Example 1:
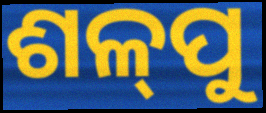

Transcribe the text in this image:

ଶଳ୍‍ପୁ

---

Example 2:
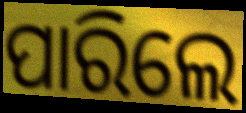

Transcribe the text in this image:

ପାରିଲେ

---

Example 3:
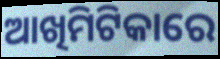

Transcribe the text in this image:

ଆଖିମିଟିକାରେ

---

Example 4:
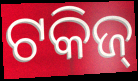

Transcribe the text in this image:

ଟକିଜ୍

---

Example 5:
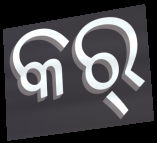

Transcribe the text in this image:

କର୍